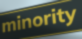
minority